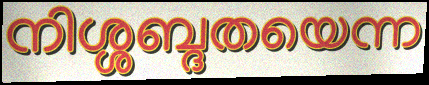
നിശ്ശബ്ദതയെന്ന